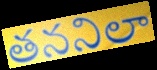
తననిలా